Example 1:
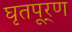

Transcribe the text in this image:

घृतपूर्ण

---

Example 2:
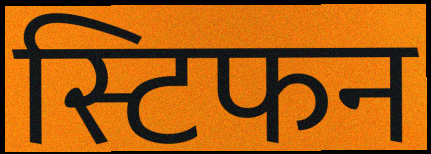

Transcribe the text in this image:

स्टिफन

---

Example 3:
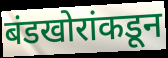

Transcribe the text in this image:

बंडखोरांकडून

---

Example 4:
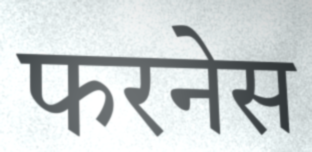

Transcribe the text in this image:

फरनेस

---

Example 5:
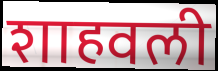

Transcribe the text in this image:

शाहवली